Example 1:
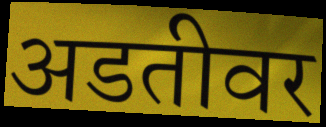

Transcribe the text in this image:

अडतीवर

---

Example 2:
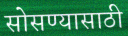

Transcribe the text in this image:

सोसण्यासाठी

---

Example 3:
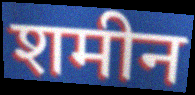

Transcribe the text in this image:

शमीन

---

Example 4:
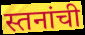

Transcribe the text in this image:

स्तनांची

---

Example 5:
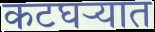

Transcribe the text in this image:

कटघऱ्यात